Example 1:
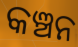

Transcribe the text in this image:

କଞ୍ଚନ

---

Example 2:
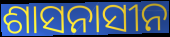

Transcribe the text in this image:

ଶାସନାସୀନ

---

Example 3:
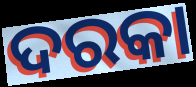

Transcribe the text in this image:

ଦରକା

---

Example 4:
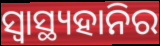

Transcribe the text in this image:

ସ୍ଵାସ୍ଥ୍ୟହାନିର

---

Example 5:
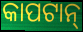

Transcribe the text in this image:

କାପଟାନ୍